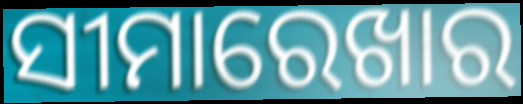
ସୀମାରେଖାର